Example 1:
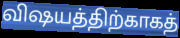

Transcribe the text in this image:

விஷயத்திற்காகத்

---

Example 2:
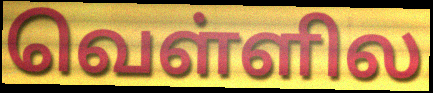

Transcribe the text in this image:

வெள்ளில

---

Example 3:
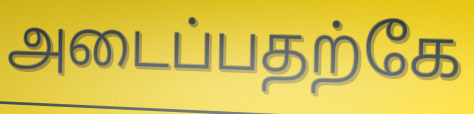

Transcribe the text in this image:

அடைப்பதற்கே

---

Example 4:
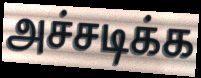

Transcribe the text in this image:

அச்சடிக்க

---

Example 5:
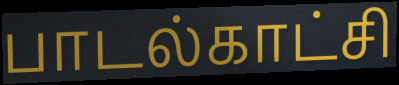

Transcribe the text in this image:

பாடல்காட்சி